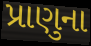
પ્રાણુના